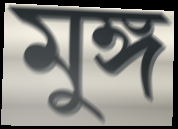
মুঙ্গ